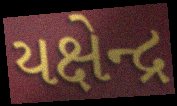
યક્ષેન્દ્ર